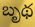
బృథ